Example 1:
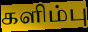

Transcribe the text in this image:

களிம்பு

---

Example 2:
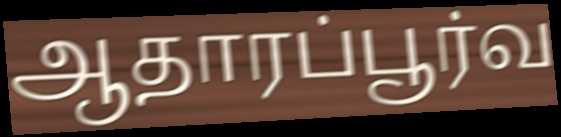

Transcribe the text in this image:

ஆதாரப்பூர்வ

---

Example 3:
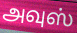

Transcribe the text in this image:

அவுஸ்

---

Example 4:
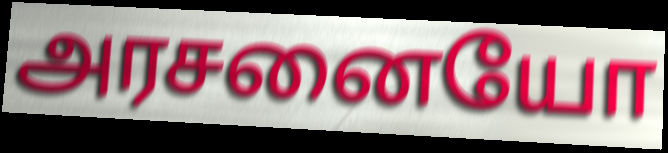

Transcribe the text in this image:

அரசனையோ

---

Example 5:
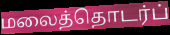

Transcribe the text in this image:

மலைத்தொடர்ப்